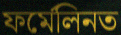
ফৰ্মেলিনত